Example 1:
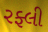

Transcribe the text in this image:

રફ્લી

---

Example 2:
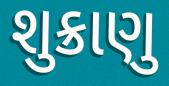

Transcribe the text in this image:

શુક્રાણુ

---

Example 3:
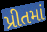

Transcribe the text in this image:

પ્રીતમાં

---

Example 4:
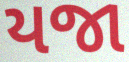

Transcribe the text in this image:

યજા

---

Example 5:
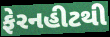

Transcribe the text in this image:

ફેરનહીટથી